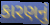
કારણનું